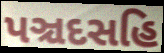
પઞ્ચદસહિ